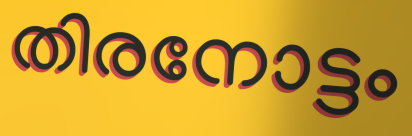
തിരനോട്ടം